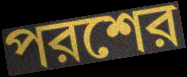
পরশের